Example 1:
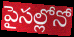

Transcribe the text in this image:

పైసల్లోనో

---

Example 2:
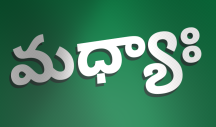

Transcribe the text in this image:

మధ్యాః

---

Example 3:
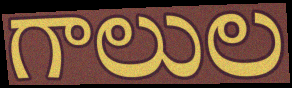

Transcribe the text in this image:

గాలుల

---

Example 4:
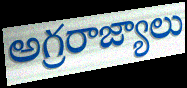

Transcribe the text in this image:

అగ్రరాజ్యాలు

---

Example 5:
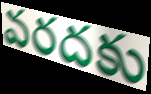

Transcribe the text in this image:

వరదకు